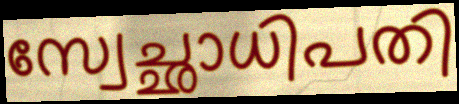
സ്വേച്ഛാധിപതി